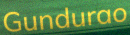
Gundurao